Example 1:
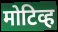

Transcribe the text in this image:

मोटिव्ह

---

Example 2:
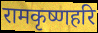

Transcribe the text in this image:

रामकृष्णहरि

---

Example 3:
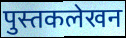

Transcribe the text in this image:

पुस्तकलेखन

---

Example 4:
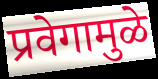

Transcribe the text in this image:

प्रवेगामुळे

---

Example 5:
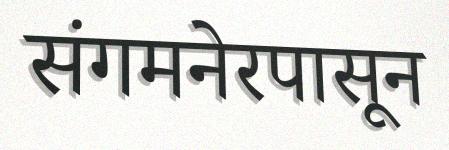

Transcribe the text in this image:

संगमनेरपासून